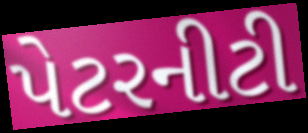
પેટરનીટી